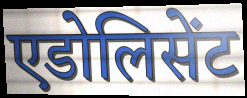
एडोलिसेंट